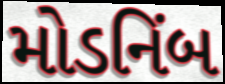
મોડનિંબ